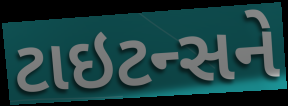
ટાઇટન્સને